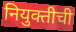
नियुक्तीची